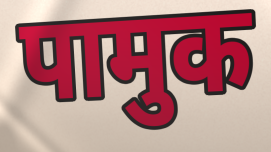
पामुक